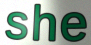
she